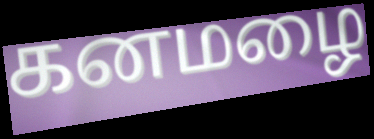
கனமழை